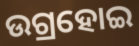
ଉଗ୍ରହୋଇ